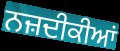
ਨਜ਼ਦੀਕੀਆਂ